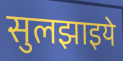
सुलझाइये